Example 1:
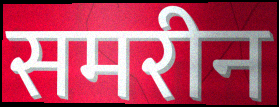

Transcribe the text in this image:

समरीन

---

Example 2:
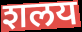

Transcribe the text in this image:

शलय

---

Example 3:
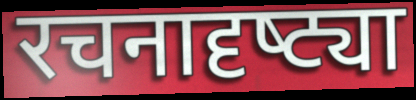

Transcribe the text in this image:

रचनादृष्ट्या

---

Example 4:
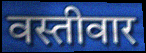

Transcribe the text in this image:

वस्तीवार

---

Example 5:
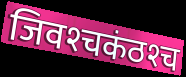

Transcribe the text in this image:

जिवश्चकंठश्च